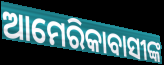
ଆମେରିକାବାସୀଙ୍କ